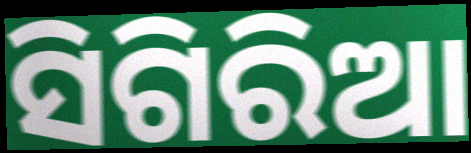
ସିଗିରିଆ